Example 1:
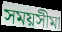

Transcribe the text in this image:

সময়সীমা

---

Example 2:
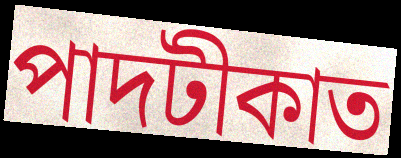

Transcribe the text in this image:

পাদটীকাত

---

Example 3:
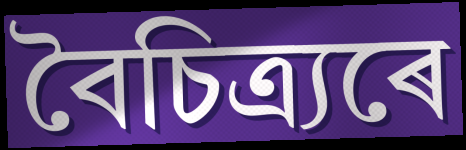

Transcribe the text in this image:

বৈচিত্ৰ্যৰে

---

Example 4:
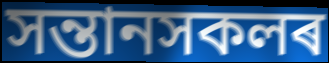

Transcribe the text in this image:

সন্তানসকলৰ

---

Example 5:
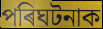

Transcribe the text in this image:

পৰিঘটনাক